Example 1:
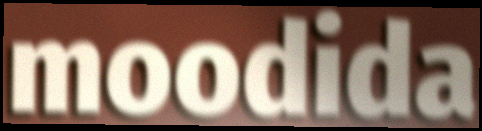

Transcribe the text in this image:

moodida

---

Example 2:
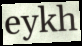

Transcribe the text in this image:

eykh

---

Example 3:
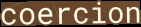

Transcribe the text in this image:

coercion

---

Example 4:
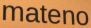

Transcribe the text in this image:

mateno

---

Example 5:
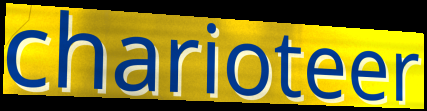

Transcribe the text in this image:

charioteer